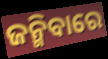
ଜନ୍ମିବାରେ